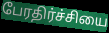
பேரதிர்ச்சியை